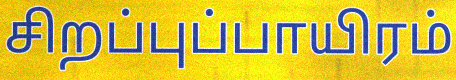
சிறப்புப்பாயிரம்